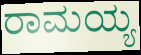
ರಾಮಯ್ಯ